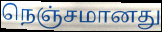
நெஞ்சமானது